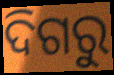
ଦିଗରୁ